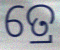
ତ୍ରେ